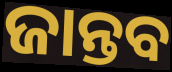
ଜାନ୍ତବ